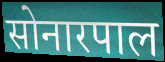
सोनारपाल